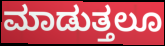
ಮಾಡುತ್ತಲೂ